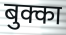
बुक्का